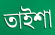
তাইশা